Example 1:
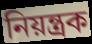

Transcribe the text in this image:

নিয়ন্ত্রক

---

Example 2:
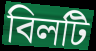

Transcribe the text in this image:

বিলটি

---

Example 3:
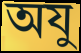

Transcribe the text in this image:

অযু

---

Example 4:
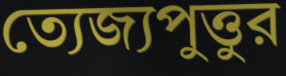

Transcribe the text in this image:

ত্যেজ্যপুত্তুর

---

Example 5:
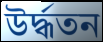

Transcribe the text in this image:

উর্দ্ধতন